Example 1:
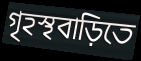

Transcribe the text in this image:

গৃহস্থবাড়িতে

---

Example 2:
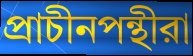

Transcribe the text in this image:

প্রাচীনপন্থীরা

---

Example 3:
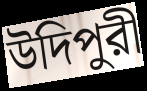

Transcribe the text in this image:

উদিপুরী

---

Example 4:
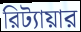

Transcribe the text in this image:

রিট্যায়ার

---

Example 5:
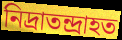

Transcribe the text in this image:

নিদ্রাতন্দ্রাহত